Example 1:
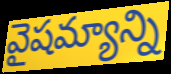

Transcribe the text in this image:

వైషమ్యాన్ని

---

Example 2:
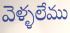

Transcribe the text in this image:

వెళ్ళలేము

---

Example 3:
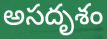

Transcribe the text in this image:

అసదృశం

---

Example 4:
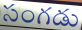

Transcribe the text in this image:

సంగడు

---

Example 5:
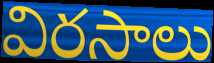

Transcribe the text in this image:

విరసాలు